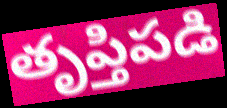
తృప్తిపడి